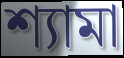
শ্যামা